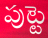
పుట్టె